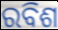
ରବିଶ